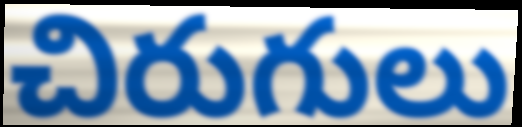
చిరుగులు